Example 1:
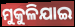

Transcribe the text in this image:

ମୁକୁଳିଯାଇ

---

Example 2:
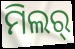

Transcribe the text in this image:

ମିଲର୍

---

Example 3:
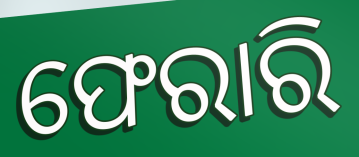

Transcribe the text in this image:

ଫେରାରି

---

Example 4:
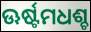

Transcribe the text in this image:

ଊର୍ଷ୍ଟମଧଶ୍ଚ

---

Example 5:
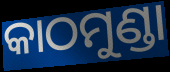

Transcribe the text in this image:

କାଠମୁଣ୍ଡା